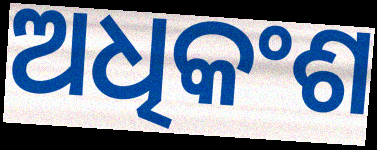
ଅଧିକଂଶ